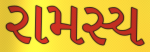
રામસ્ય